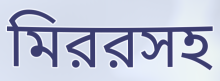
মিররসহ